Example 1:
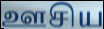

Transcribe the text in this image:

ஊசிய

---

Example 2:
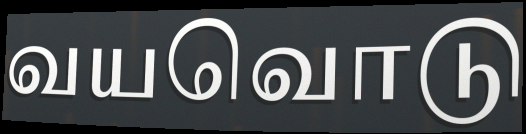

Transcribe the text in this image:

வயவொடு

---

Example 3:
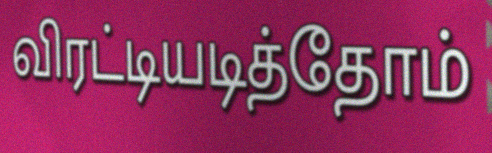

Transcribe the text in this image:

விரட்டியடித்தோம்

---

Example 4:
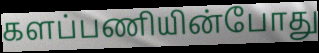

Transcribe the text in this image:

களப்பணியின்போது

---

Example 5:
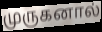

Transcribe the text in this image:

முருகனால்